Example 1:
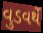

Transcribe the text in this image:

વુડવર્થે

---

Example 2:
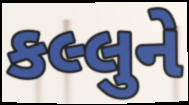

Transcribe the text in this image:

કલ્લુને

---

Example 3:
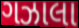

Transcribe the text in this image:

ગઝાલા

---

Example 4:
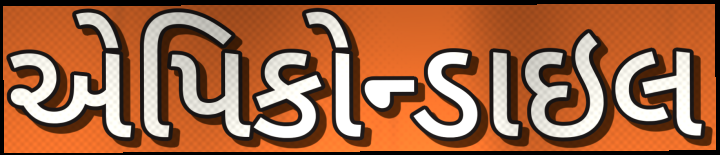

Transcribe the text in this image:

એપિકોન્ડાઇલ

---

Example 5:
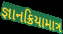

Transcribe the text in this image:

જ્ઞાનક્રિયામાત્ર